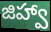
జిహ్వా